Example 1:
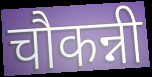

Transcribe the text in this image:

चौकन्नी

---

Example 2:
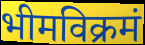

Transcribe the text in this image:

भीमविक्रमं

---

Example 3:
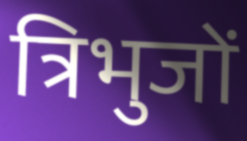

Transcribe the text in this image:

त्रिभुजों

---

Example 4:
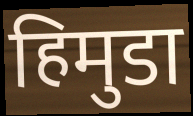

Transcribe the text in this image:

हिमुडा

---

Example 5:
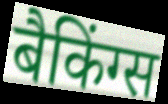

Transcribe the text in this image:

बैकिंग्स